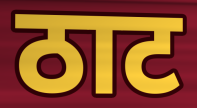
ठाट